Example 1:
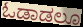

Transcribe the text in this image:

ಓಡಾಡಲೂ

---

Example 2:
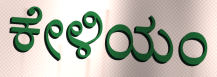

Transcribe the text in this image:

ಕೇಳಿಯಂ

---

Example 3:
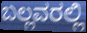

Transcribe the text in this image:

ಬಲ್ಲವರಲ್ಲಿ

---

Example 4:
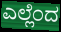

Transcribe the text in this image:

ಎಲ್ಲೆಂದ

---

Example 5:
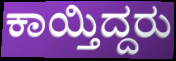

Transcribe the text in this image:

ಕಾಯ್ತಿದ್ದರು